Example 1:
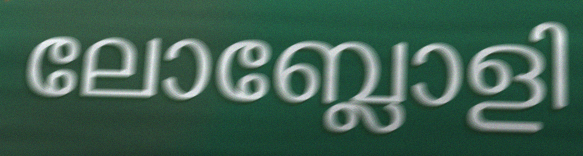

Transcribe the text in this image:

ലോബ്ലോളി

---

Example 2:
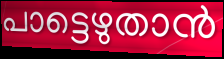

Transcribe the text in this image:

പാട്ടെഴുതാൻ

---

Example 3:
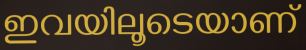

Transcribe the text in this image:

ഇവയിലൂടെയാണ്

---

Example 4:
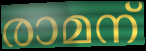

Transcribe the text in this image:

രാമന്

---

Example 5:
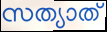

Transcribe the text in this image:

സത്യാത്